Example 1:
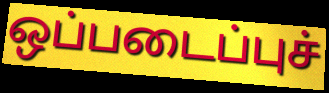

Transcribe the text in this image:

ஒப்படைப்புச்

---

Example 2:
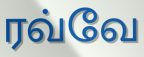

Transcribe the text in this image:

ரவ்வே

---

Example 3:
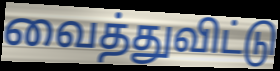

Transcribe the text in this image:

வைத்துவிட்டு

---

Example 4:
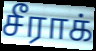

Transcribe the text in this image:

சீராக்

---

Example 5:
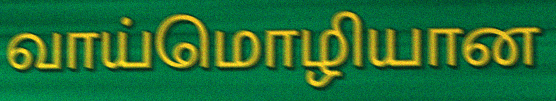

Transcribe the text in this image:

வாய்மொழியான